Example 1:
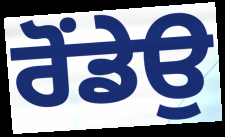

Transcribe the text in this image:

ਰੋਂਡੇਉ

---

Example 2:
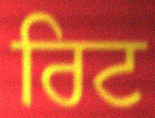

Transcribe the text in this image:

ਰਿਟ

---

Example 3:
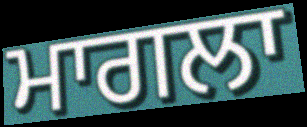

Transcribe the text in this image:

ਮਾਗਲਾ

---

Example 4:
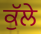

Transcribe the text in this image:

ਕੁੱਲੇ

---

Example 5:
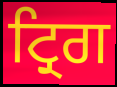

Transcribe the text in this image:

ਟ੍ਰਿਗ